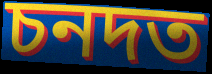
চনদত